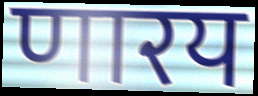
णारय